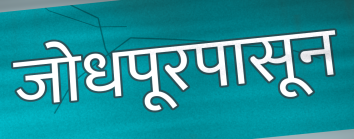
जोधपूरपासून